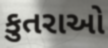
કુતરાઓ